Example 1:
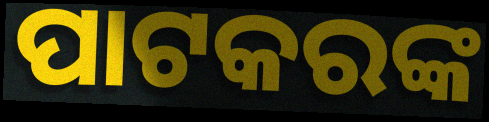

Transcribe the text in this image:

ପାଟକରଙ୍କ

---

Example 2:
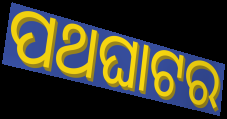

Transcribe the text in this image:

ପଥଘାଟର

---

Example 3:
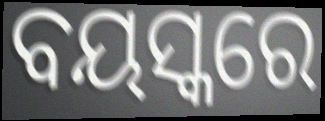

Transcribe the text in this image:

ବୟସ୍କରେ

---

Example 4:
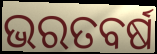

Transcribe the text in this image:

ଭରତବର୍ଷ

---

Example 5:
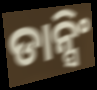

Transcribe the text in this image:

ଡାନ୍ସିଂ